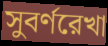
সুবর্ণরেখা